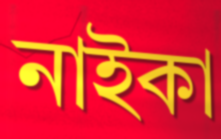
নাইকা